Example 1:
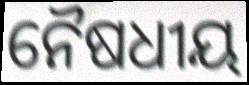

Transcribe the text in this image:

ନୈଷଧୀୟ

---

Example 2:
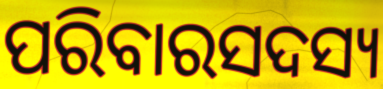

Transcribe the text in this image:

ପରିବାରସଦସ୍ୟ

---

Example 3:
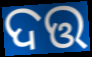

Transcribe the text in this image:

ଦତ୍ତ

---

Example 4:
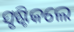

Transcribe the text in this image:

ସୃଷ୍ଟିକଲେ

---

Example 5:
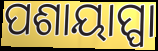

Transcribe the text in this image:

ପଶାୟାପ୍ପା